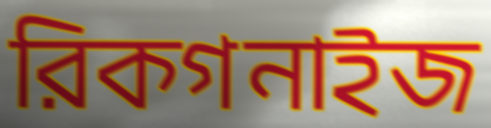
রিকগনাইজ